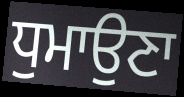
ਧੁਮਾਉਣਾ